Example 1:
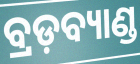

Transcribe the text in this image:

ବ୍ରଡ଼ବ୍ୟାଣ୍ଡ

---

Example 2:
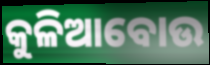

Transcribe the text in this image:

କୁଳିଆବୋଉ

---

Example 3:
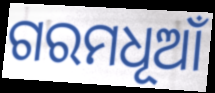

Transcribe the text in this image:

ଗରମଧୂଆଁ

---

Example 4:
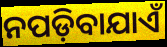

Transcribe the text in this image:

ନପଡ଼ିବାଯାଏଁ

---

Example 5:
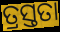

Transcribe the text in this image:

ତ୍ରସ୍ତତା